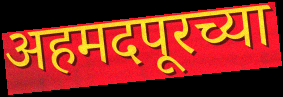
अहमदपूरच्या